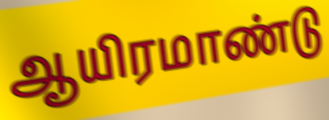
ஆயிரமாண்டு